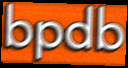
bpdb